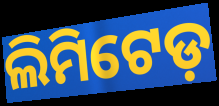
ଲିମିଟେଡ଼